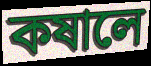
কষালে